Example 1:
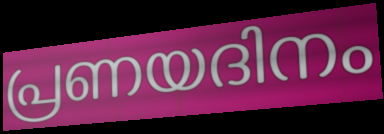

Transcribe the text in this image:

പ്രണയദിനം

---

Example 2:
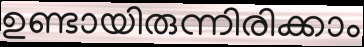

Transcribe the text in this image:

ഉണ്ടായിരുന്നിരിക്കാം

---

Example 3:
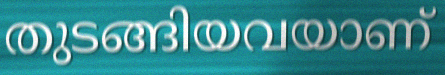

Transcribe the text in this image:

തുടങ്ങിയവയാണ്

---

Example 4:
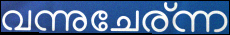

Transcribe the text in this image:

വന്നുചേര്ന്ന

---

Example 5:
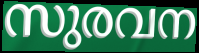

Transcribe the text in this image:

സുരവന